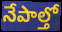
నేపాల్తో